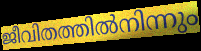
ജീവിതത്തിൽനിന്നും